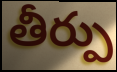
తీర్పు